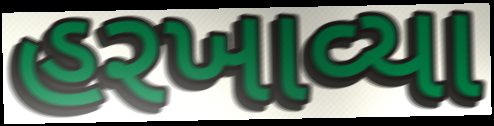
હરખાવ્યા